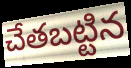
చేతబట్టిన